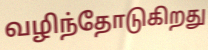
வழிந்தோடுகிறது